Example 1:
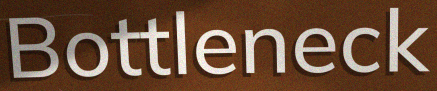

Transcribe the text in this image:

Bottleneck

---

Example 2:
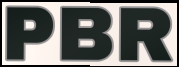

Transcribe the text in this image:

PBR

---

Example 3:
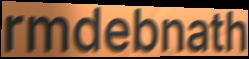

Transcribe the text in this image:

rmdebnath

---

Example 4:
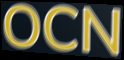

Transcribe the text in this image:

OCN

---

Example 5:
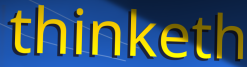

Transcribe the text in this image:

thinketh